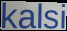
kalsi